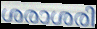
ശരാശരി